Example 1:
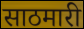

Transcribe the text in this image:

साठमारी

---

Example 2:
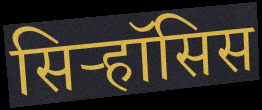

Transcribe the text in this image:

सिऱ्हॉसिस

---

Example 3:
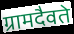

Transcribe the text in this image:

ग्रामदैवते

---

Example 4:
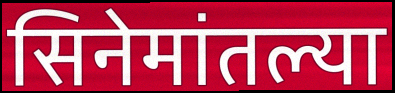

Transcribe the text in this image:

सिनेमांतल्या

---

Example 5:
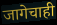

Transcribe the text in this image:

जागेचाही